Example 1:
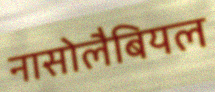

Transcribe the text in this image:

नासोलैबियल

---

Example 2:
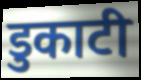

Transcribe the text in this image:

डुकाटी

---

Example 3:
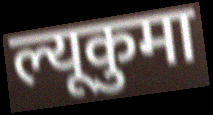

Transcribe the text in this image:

ल्यूकुमा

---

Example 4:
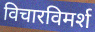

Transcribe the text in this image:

विचारविमर्श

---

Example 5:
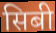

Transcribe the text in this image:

सिबी